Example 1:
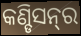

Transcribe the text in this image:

କଣ୍ଡିସନ୍‌ର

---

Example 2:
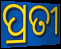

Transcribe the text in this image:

ପ୍ରତୀ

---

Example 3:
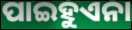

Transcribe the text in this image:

ପାଇହୁଏନା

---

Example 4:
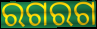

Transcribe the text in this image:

ରଗରଗ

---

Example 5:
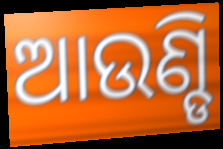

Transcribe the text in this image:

ଆଉଣ୍ଡି